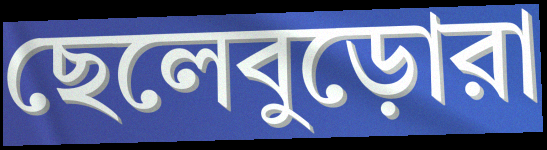
ছেলেবুড়োরা